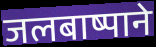
जलबाष्पाने